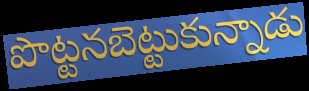
పొట్టనబెట్టుకున్నాడు